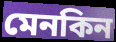
মেনকিন